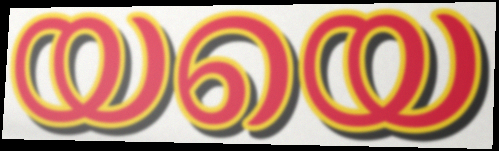
യയെ